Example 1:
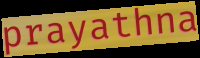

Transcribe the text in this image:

prayathna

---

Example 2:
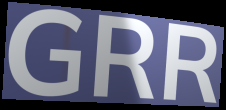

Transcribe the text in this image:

GRR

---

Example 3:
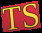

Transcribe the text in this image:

TS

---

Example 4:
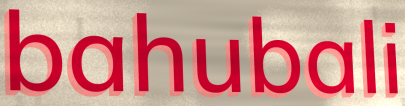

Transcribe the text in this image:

bahubali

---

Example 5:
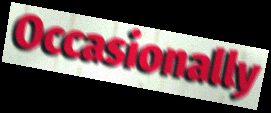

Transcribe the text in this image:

Occasionally